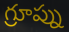
గ్రూప్ను